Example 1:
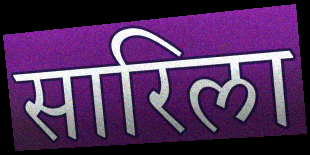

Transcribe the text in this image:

सारिला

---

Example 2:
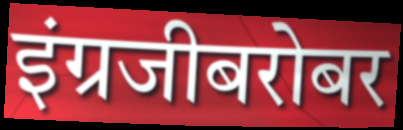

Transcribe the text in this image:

इंग्रजीबरोबर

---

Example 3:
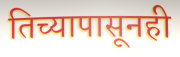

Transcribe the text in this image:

तिच्यापासूनही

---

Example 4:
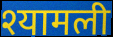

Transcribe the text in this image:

श्यामली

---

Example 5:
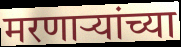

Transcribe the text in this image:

मरणाऱ्यांच्या